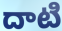
దాటి